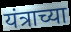
यंत्राच्या